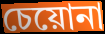
চেয়োনা